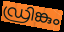
ഡ്രിങ്കും